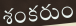
శంకరుం